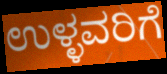
ಉಳ್ಳವರಿಗೆ